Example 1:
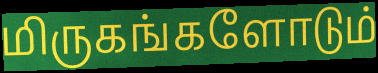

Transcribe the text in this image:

மிருகங்களோடும்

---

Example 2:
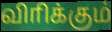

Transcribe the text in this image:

விரிக்கும்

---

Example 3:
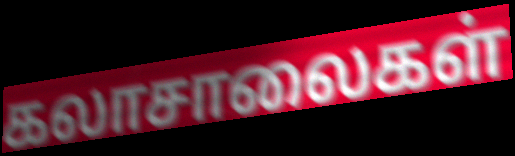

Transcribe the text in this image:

கலாசாலைகள்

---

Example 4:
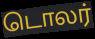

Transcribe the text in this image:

டொலர்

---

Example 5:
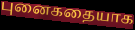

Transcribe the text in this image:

புனைகதையாக